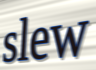
slew